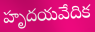
హృదయవేదిక